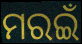
ମରଇଁ